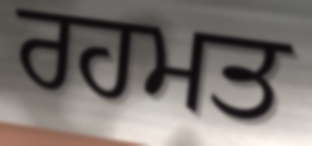
ਰਹਮਤ